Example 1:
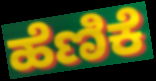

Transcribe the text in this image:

ಹೆಣಿಕೆ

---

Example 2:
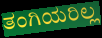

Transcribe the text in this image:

ತಂಗಿಯರಿಲ್ಲ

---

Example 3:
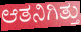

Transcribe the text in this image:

ಆತನಿಗಿತ್ತು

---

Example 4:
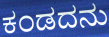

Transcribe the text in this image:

ಕಂಡದನು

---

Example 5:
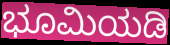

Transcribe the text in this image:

ಭೂಮಿಯಡಿ